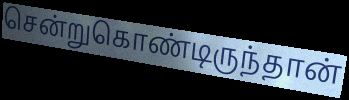
சென்றுகொண்டிருந்தான்